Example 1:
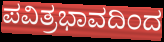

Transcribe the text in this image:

ಪವಿತ್ರಭಾವದಿಂದ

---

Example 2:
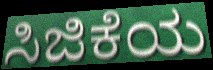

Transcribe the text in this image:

ಸಿಜಿಕೆಯ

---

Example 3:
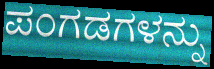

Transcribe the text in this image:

ಪಂಗಡಗಳನ್ನು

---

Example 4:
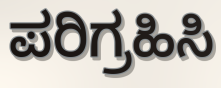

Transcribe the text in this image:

ಪರಿಗ್ರಹಿಸಿ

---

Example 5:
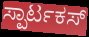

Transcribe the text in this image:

ಸ್ಪಾರ್ಟಕಸ್